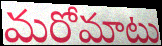
మరోమాటు